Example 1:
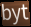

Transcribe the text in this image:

byt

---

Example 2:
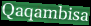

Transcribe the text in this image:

Qaqambisa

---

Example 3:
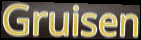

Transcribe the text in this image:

Gruisen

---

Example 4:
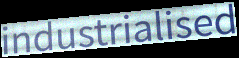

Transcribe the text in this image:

industrialised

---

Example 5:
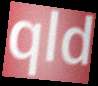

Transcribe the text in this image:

qld